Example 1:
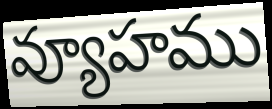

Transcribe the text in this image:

వ్యూహము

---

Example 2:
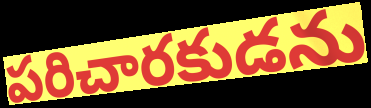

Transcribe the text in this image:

పరిచారకుడను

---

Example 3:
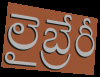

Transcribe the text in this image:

లైబ్రేరీ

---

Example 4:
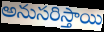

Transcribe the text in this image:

అనుసరిస్తాయి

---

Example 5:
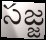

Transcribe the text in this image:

సజ్జ